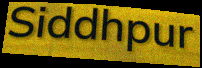
Siddhpur